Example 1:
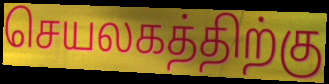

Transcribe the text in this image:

செயலகத்திற்கு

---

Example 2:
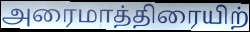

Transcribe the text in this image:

அரைமாத்திரையிற்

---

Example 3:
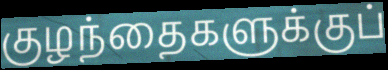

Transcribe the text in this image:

குழந்தைகளுக்குப்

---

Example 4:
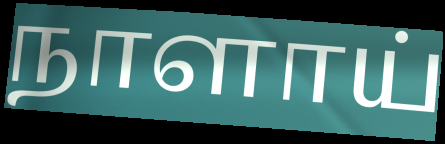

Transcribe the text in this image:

நாளாய்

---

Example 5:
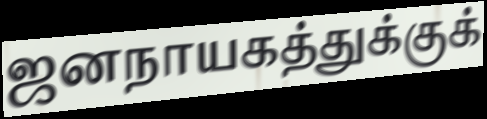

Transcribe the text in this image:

ஜனநாயகத்துக்குக்